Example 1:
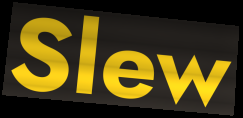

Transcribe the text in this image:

Slew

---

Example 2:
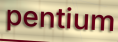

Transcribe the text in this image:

pentium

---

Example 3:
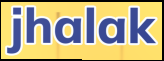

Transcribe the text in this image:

jhalak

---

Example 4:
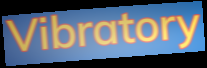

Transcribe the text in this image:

Vibratory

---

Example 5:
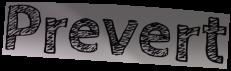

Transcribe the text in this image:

Prevert